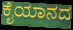
ಕೈಯಾನದ